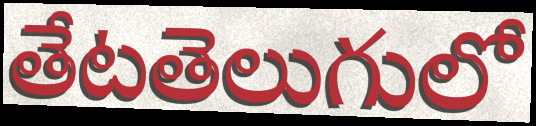
తేటతెలుగులో